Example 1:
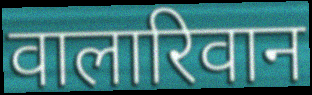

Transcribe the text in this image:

वालारिवान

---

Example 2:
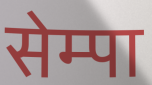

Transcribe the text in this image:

सेम्पा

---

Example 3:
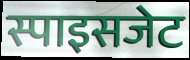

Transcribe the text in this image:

स्‍पाइसजेट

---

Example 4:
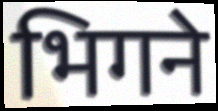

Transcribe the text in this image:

भिगने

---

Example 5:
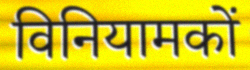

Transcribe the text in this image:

विनियामकों